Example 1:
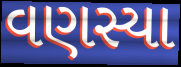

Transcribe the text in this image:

વણસ્યા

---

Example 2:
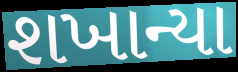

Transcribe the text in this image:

શખાન્યા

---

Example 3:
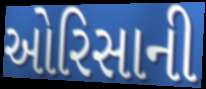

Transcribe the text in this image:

ઓરિસાની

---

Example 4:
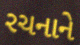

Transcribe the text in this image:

રચનાને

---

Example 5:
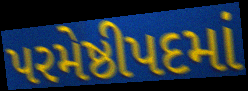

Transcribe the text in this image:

પરમેષ્ઠીપદમાં